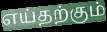
எய்தற்கும்